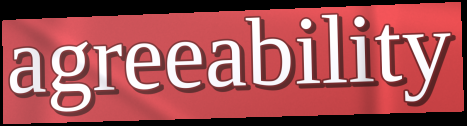
agreeability